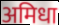
अमिधा